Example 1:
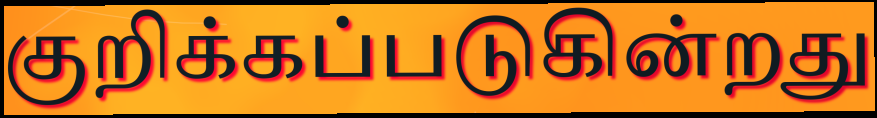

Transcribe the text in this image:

குறிக்கப்படுகின்றது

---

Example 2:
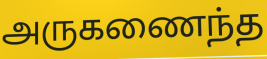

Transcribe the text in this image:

அருகணைந்த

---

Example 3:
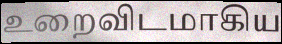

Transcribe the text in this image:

உறைவிடமாகிய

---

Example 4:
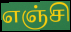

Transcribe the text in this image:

எஞ்சி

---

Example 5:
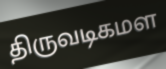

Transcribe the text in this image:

திருவடிகமள